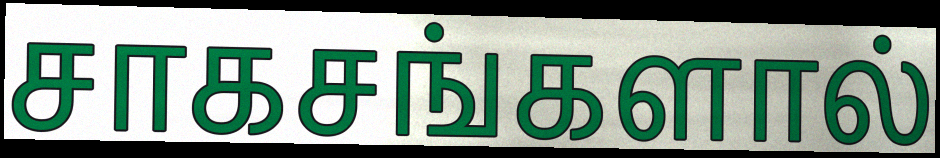
சாகசங்களால்